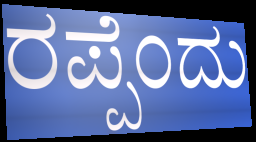
ರಪ್ಪೆಂದು